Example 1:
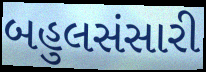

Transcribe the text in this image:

બહુલસંસારી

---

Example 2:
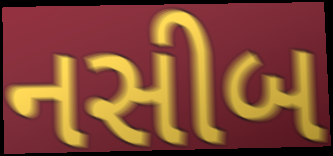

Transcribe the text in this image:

નસીબ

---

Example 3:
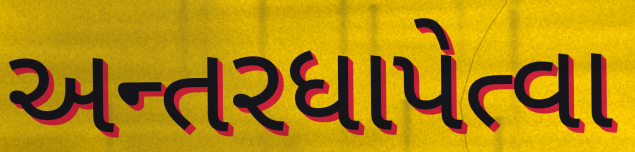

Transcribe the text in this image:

અન્તરધાપેત્વા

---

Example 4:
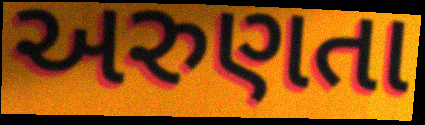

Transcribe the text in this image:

અરુણતા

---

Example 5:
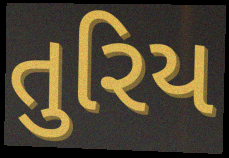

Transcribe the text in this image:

તુરિય